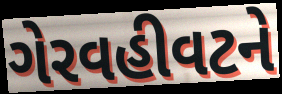
ગેરવહીવટને